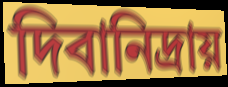
দিবানিদ্রায়